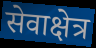
सेवाक्षेत्र